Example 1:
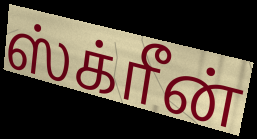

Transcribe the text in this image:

ஸ்க்ரீன்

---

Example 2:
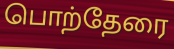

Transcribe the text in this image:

பொற்தேரை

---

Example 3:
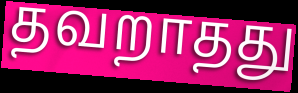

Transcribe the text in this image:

தவறாதது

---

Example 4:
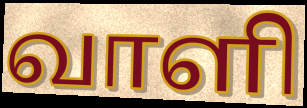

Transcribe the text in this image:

வாளி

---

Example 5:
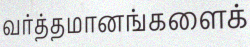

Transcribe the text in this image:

வர்த்தமானங்களைக்